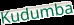
Kudumba